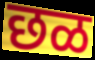
छळ